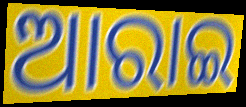
ଆରାଇ